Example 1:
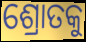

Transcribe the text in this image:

ଶ୍ରୋତକୁ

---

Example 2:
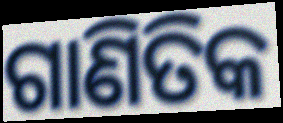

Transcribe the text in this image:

ଗାଣିତିକ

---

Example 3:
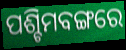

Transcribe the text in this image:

ପଶ୍ଚିମବଙ୍ଗରେ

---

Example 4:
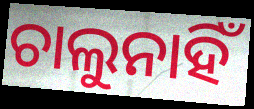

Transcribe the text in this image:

ଚାଲୁନାହିଁ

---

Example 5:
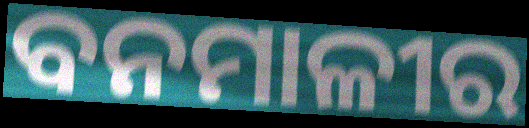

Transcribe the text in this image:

ବନମାଳୀର